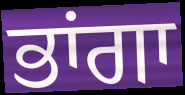
ਭਾਂਗਾ